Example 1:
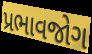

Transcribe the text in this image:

પ્રભાવજોગ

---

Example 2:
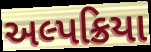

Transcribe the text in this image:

અલ્પક્રિયા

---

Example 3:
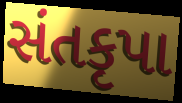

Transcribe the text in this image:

સંતકૃપા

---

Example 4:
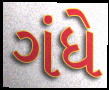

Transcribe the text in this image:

ગંધે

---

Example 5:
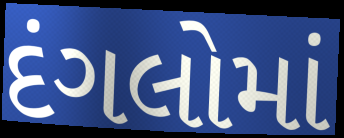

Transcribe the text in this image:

દંગલોમાં